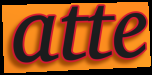
atte